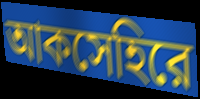
আকসেহিরে